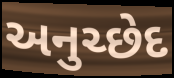
અનુચ્છેદ